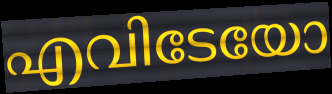
എവിടേയോ